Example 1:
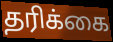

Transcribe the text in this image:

தரிக்கை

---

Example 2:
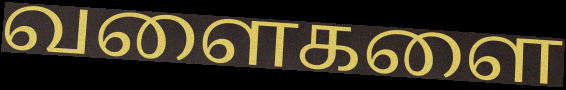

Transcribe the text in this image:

வளைகளை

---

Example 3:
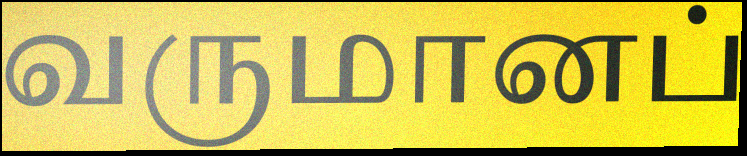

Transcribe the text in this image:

வருமானப்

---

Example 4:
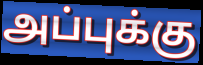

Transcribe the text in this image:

அப்புக்கு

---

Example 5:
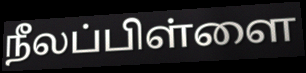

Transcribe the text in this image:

நீலப்பிள்ளை